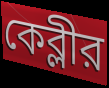
কেব্লীর